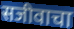
सजीवाचा